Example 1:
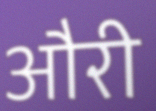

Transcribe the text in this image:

औरी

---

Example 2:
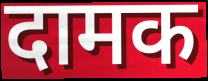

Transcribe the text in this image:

दामक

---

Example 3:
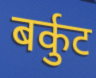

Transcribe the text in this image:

बर्कुट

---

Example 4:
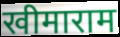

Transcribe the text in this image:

खीमाराम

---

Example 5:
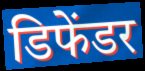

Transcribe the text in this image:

डिफेंडर